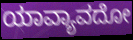
ಯಾವ್ಯಾವದೋ